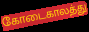
கோடைகாலத்து